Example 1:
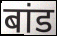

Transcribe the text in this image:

बांड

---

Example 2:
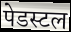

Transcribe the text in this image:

पेडस्टल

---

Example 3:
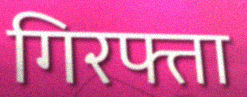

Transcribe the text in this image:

गिरफ्ता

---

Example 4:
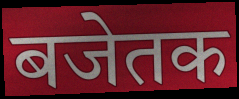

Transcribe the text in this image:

बजेतक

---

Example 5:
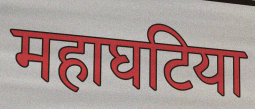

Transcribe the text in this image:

महाघटिया